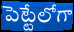
పెట్టేలోగా